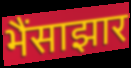
भैंसाझार